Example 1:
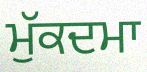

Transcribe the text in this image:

ਮੁੱਕਦਮਾ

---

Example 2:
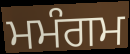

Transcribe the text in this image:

ਮਮੰਗਮ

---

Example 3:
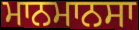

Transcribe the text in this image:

ਮਾਨਮਾਨਸਾ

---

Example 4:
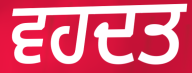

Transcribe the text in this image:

ਵਹਦਤ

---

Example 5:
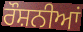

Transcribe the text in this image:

ਰੌਸ਼ਨੀਆਂ